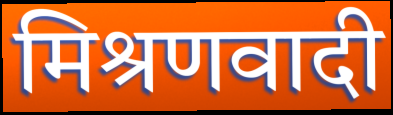
मिश्रणवादी